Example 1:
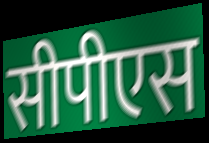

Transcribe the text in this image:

सीपीएस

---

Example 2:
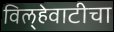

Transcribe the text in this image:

विल्हेवाटीचा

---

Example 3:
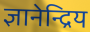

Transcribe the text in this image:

ज्ञानेन्द्रिय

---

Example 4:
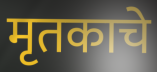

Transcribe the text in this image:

मृतकाचे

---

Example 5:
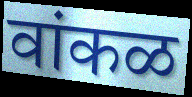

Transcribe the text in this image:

वांकळ